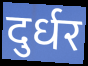
दुर्धर